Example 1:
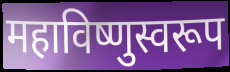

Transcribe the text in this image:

महाविष्णुस्वरूप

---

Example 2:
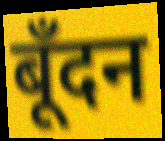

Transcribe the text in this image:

बूँदन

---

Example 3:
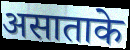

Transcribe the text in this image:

असाताके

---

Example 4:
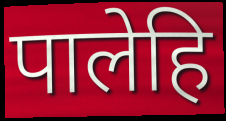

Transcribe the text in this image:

पालेहि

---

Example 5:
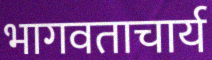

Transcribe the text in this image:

भागवताचार्य